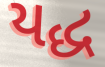
યદ્ધ